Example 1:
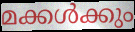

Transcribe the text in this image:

മക്കൾക്കും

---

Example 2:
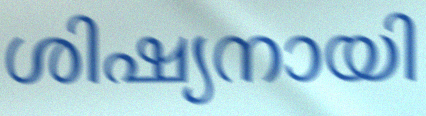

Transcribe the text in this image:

ശിഷ്യനായി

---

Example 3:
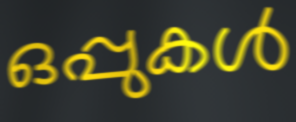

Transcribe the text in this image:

ഒപ്പുകൾ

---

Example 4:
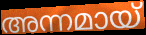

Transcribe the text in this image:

അന്നമായ്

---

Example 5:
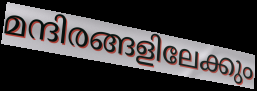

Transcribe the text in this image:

മന്ദിരങ്ങളിലേക്കും